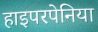
हाइपरपेनिया